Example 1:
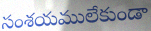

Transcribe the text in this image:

సంశయములేకుండా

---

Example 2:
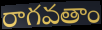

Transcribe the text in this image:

రాగవతాం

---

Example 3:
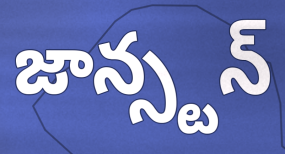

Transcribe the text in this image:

జాన్స్టన్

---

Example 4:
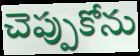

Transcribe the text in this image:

చెప్పుకోను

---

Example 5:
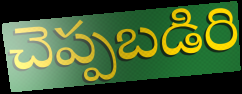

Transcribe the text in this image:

చెప్పబడిరి